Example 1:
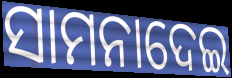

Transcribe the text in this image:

ସାମନାଦେଇ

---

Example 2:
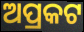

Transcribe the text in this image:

ଅପ୍ରକଟ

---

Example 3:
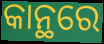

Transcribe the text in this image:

କାନ୍ଥରେ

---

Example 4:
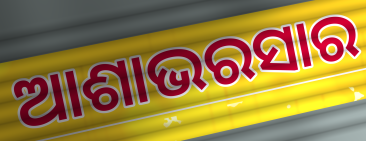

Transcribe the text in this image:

ଆଶାଭରସାର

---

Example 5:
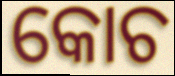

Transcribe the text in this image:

କୋଚ